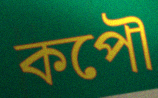
কপৌ